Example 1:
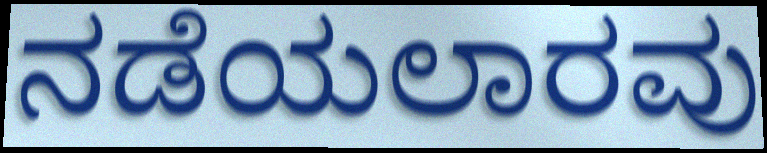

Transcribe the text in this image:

ನಡೆಯಲಾರವು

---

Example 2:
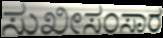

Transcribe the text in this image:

ಸುಖೀಸಂಸಾರ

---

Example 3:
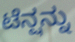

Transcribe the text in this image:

ಟೆನ್ಷನ್ನು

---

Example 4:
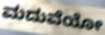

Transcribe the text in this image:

ಮದುವೆಯೋ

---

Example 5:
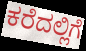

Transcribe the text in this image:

ಕರೆದಲ್ಲಿಗೆ